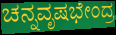
ಚನ್ನವೃಷಭೇಂದ್ರ